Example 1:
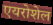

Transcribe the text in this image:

एयरोशेल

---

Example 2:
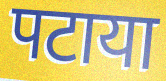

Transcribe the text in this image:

पटाया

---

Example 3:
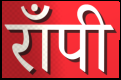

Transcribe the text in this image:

राँपी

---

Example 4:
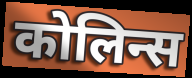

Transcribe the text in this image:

कोलिन्स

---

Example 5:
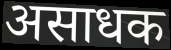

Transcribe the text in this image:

असाधक